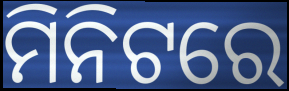
ମିନିଟରେ